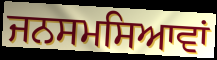
ਜਨਸਮਸਿਆਵਾਂ